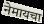
नेमायचा